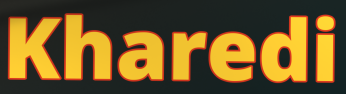
Kharedi